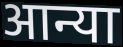
आन्या